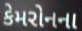
કેમરોનના